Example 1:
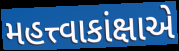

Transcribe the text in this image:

મહત્ત્વાકાંક્ષાએ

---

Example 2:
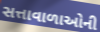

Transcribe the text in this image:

સત્તાવાળાઓની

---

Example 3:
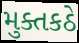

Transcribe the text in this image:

મુક્તકઠે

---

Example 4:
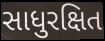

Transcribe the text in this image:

સાધુરક્ષિત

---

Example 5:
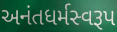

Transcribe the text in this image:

અનંતધર્મસ્વરૂપ